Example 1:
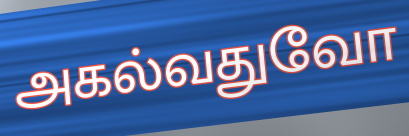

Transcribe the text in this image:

அகல்வதுவோ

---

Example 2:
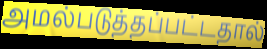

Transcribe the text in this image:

அமல்படுத்தப்பட்டதால்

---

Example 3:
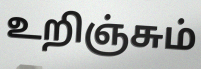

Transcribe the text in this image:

உறிஞ்சும்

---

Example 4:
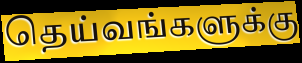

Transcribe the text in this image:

தெய்வங்களுக்கு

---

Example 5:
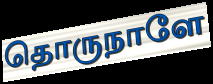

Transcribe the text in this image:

தொருநாளே